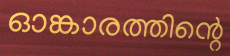
ഓങ്കാരത്തിന്റെ